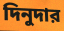
দিনুদার